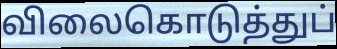
விலைகொடுத்துப்